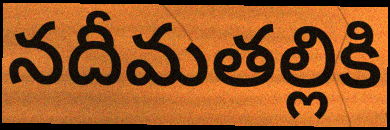
నదీమతల్లికి